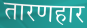
तारणहार